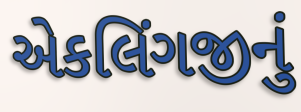
એકલિંગજીનું